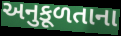
અનુકૂળતાના